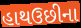
હાથઉછીના